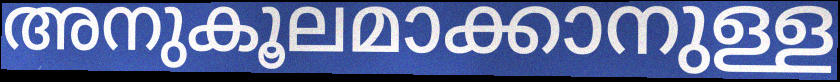
അനുകൂലമാക്കാനുള്ള